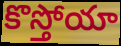
కొస్తోయా